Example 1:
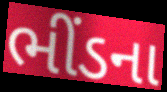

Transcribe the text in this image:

ભીંડના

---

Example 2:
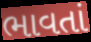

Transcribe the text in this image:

ભાવતાં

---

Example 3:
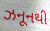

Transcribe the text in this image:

ઝનૂનથી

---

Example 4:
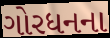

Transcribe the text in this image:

ગોરધનના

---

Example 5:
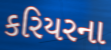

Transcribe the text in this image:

કરિયરના